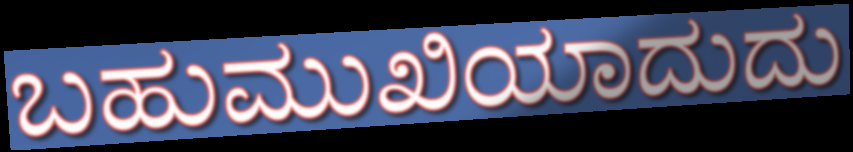
ಬಹುಮುಖಿಯಾದುದು